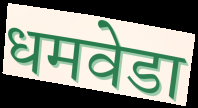
धमवेडा